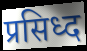
प्रसिध्द